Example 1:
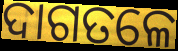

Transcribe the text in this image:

ଦାଗତଳେ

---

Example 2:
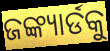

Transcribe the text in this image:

ଜଙ୍କ୍ୟାର୍ଡକୁ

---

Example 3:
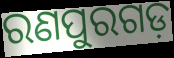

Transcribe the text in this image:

ରଣପୁରଗଡ଼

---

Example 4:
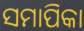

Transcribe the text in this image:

ସମାପିକା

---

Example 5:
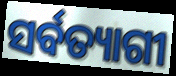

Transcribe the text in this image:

ସର୍ବତ୍ୟାଗୀ